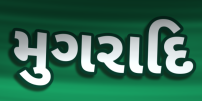
મુગરાદિ